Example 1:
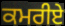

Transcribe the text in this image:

ਕਮਰੀਏ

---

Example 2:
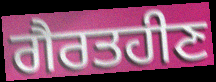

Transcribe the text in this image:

ਗੈਰਤਹੀਣ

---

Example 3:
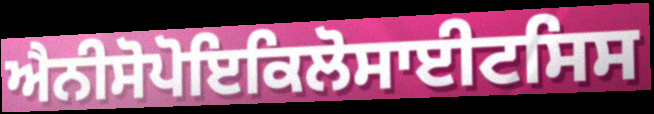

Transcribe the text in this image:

ਐਨੀਸੋਪੋਇਕਿਲੋਸਾਈਟਸਿਸ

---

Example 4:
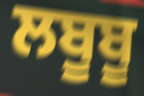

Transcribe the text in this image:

ਲਬੂਬੂ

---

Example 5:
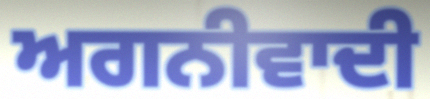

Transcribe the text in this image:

ਅਗਨੀਵਾਦੀ